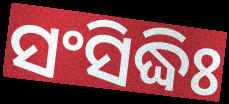
ସଂସିଦ୍ଧିଃ